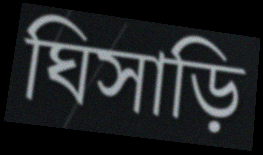
ঘিসাড়ি